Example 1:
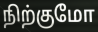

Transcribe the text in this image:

நிற்குமோ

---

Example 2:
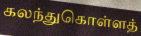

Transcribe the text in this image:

கலந்துகொள்ளத்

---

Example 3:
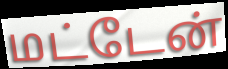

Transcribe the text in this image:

மட்டேன்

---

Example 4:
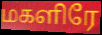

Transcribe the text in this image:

மகளிரே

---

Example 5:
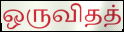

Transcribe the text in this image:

ஒருவிதத்